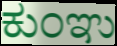
ಕುಂಞು